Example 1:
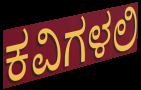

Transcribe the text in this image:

ಕವಿಗಳಲಿ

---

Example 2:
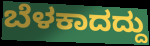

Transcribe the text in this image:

ಬೆಳಕಾದದ್ದು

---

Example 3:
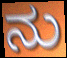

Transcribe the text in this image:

ನು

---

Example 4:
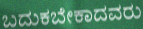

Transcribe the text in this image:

ಬದುಕಬೇಕಾದವರು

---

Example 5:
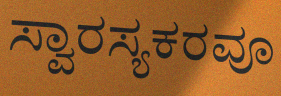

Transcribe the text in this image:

ಸ್ವಾರಸ್ಯಕರವೂ